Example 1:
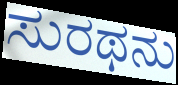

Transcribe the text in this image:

ಸುರಥನು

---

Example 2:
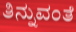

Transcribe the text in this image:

ತಿನ್ನುವಂತೆ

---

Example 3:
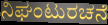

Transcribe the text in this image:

ನಿಘಂಟುರಚನೆ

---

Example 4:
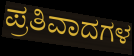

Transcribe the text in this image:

ಪ್ರತಿವಾದಗಳ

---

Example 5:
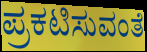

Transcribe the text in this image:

ಪ್ರಕಟಿಸುವಂತೆ